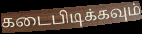
கடைபிடிக்கவும்